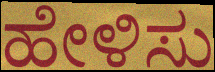
ಹೇಳಿಸು